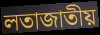
লতাজাতীয়